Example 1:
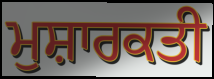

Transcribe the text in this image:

ਮੁਸ਼ਾਰਕਤੀ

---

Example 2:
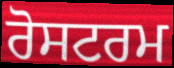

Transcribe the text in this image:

ਰੋਸਟਰਮ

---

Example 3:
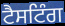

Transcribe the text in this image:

ਟੈਸਟਿੰਗ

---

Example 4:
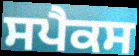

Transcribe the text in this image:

ਸਪੈਕਸ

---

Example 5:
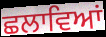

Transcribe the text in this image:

ਛਲਾਵਿਆਂ